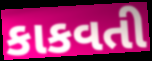
કાકવતી